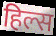
हिल्स